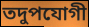
তদুপযোগী